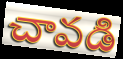
చావడి